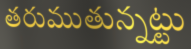
తరుముతున్నట్టు